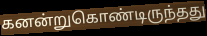
கனன்றுகொண்டிருந்தது